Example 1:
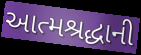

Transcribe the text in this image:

આત્મશ્રદ્ધાની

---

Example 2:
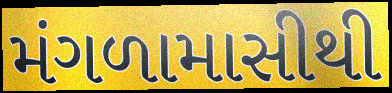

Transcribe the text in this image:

મંગળામાસીથી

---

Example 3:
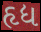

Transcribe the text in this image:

હૃદ્ય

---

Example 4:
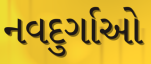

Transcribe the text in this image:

નવદુર્ગાઓ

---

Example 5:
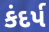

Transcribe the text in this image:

કંદર્પ